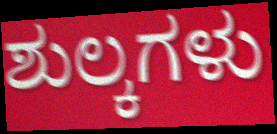
ಶುಲ್ಕಗಳು